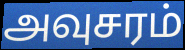
அவுசரம்